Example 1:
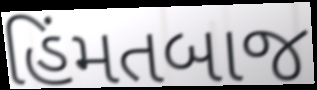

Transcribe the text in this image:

હિંમતબાજ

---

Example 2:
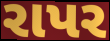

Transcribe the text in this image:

રાપર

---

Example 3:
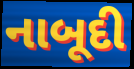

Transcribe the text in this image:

નાબૂદી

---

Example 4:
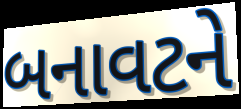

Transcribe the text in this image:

બનાવટને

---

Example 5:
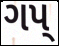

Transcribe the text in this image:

ગપ્